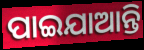
ପାଇଯାଆନ୍ତି